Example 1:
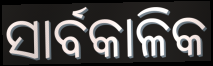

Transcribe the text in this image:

ସାର୍ବକାଳିକ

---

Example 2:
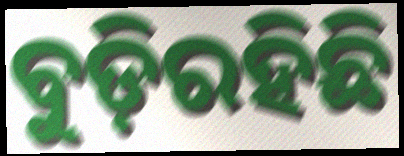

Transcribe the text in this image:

ବୁଡ଼ିରହିଛି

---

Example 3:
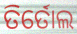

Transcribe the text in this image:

ତିର୍ତୋଲ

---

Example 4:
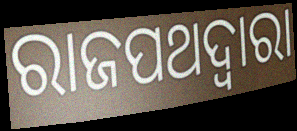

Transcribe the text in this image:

ରାଜପଥଦ୍ୱାରା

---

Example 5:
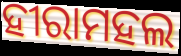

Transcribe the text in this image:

ହୀରାମହଲ